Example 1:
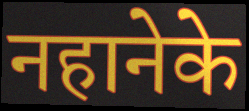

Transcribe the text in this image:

नहानेके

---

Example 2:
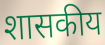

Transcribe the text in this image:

शासकीय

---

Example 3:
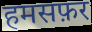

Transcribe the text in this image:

हमसफ़र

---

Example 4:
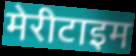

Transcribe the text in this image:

मेरीटाइम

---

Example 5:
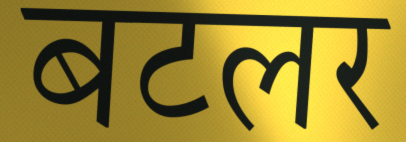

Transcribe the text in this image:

बटलर